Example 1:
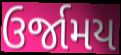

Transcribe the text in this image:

ઉર્જામય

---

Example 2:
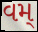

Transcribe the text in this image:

વમ્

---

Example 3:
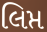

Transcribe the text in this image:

લિપ્ત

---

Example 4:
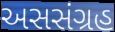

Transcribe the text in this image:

અસસંગ્રહ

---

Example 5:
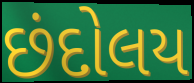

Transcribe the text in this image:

છંદોલય